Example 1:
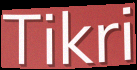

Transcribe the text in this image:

Tikri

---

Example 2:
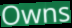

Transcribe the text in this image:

Owns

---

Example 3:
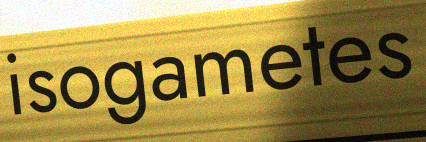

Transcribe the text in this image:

isogametes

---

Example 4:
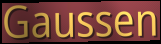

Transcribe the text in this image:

Gaussen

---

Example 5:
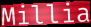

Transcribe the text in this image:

Millia